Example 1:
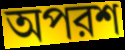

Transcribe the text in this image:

অপরশ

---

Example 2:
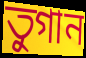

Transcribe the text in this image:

তুগান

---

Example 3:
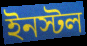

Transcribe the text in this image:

ইনস্টল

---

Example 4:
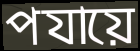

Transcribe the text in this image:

পযায়ে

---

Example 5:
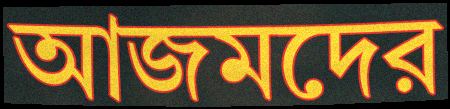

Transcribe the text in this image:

আজমদের